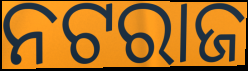
ନଟରାଜ